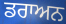
ਡਰਾਅਨ